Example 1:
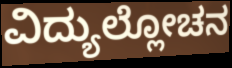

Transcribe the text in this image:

ವಿದ್ಯುಲ್ಲೋಚನ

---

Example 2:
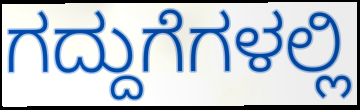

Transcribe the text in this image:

ಗದ್ದುಗೆಗಳಲ್ಲಿ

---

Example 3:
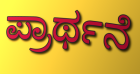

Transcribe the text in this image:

ಪ್ರಾರ್ಥನೆ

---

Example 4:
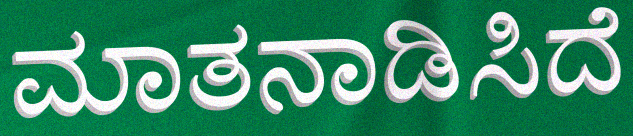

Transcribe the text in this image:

ಮಾತನಾಡಿಸಿದೆ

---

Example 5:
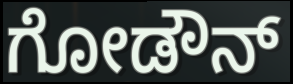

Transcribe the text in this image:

ಗೋಡೌನ್